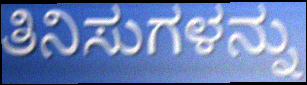
ತಿನಿಸುಗಳನ್ನು